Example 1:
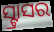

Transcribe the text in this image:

ସ୍ଟ୍ରାସର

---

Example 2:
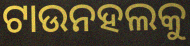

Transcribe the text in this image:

ଟାଉନହଲକୁ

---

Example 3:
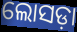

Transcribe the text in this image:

ଲୋସଡ଼ା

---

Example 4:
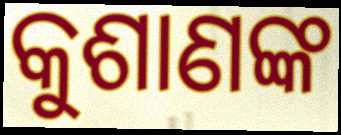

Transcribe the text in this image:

କୁଶାଣଙ୍କ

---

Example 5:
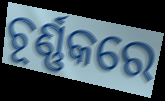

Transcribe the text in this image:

ଚୂର୍ଣ୍ଣକରେ